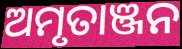
ଅମୃତାଞ୍ଜନ